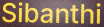
Sibanthi